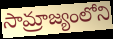
సామ్రాజ్యంలోని